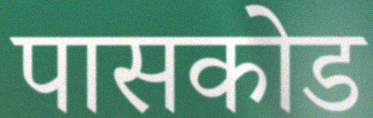
पासकोड